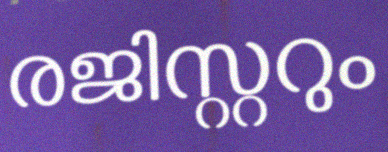
രജിസ്റ്ററും